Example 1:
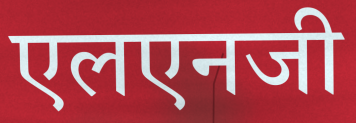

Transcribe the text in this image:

एलएनजी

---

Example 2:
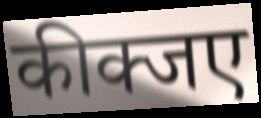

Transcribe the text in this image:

कीक्जए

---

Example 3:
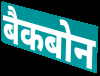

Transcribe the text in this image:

बैकबोन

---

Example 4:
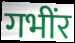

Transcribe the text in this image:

गभींर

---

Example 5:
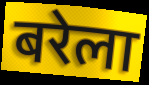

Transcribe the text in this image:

बरेला